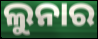
ଲୁନାର